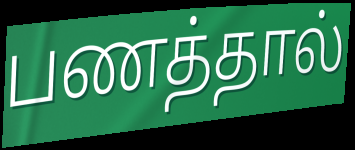
பணத்தால்